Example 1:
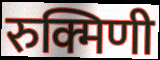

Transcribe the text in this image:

रुक्मिणी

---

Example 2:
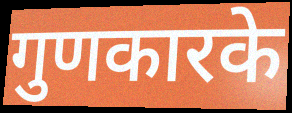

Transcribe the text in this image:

गुणकारके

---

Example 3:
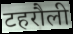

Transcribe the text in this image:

टहरौली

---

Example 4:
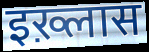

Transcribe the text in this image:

इख़्लास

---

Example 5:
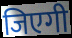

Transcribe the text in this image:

जिएगी